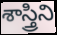
శాస్త్రిని